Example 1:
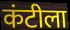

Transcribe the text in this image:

कंटीला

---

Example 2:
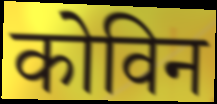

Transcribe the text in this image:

कोविन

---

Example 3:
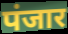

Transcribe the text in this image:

पंजार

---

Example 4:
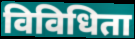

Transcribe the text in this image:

विविधिता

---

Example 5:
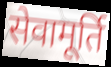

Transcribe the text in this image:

सेवामूर्ति